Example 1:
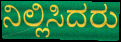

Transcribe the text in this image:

ನಿಲ್ಲಿಸಿದರು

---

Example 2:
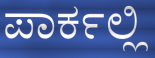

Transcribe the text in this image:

ಪಾರ್ಕಲ್ಲಿ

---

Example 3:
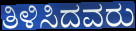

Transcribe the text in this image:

ತಿಳಿಸಿದವರು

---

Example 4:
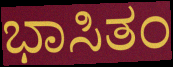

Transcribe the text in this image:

ಭಾಸಿತಂ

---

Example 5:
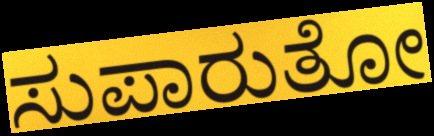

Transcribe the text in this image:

ಸುಪಾರುತೋ